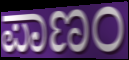
ಪಾಣಂ